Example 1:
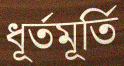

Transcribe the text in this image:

ধূর্তমূর্তি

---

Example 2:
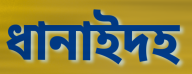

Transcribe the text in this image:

ধানাইদহ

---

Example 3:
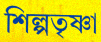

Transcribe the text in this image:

শিল্পতৃষ্ণা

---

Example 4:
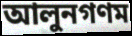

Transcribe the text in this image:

আলুনগণম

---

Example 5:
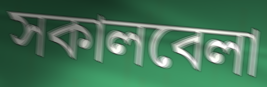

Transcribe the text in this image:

সকালবেলা